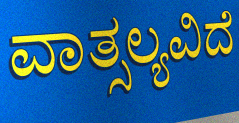
ವಾತ್ಸಲ್ಯವಿದೆ